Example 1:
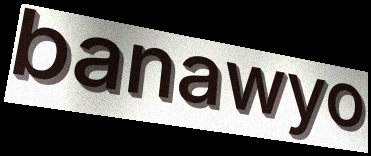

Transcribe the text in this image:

banawyo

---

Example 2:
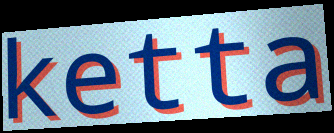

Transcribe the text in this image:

ketta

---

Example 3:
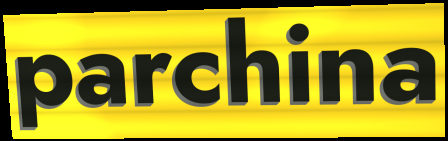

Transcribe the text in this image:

parchina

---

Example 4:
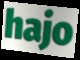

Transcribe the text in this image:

hajo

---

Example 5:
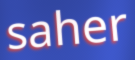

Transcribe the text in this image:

saher